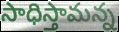
సాధిస్తామన్న